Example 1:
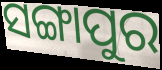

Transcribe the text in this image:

ସଙ୍ଗାପୁର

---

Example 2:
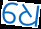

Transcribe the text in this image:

ଧେ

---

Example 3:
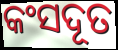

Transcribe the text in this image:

କଂସଦୂତ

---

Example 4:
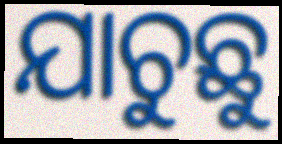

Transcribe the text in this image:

ଯାଚୁଛୁ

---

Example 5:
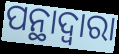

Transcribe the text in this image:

ପନ୍ଥାଦ୍ୱାରା